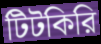
টিটকিরি